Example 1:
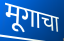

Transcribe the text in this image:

मूगाचा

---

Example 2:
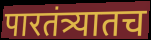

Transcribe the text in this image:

पारतंत्र्यातच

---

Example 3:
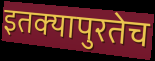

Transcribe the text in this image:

इतक्यापुरतेच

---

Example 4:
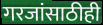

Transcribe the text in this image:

गरजांसाठीही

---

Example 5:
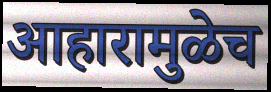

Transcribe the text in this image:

आहारामुळेच